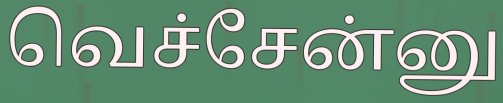
வெச்சேன்னு